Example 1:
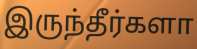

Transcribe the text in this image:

இருந்தீர்களா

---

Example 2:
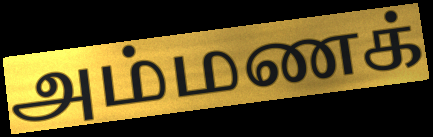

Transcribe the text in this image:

அம்மணக்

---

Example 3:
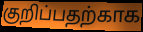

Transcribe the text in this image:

குறிப்பதற்காக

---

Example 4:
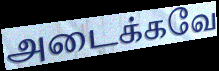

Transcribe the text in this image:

அடைக்கவே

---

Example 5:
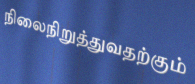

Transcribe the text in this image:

நிலைநிறுத்துவதற்கும்